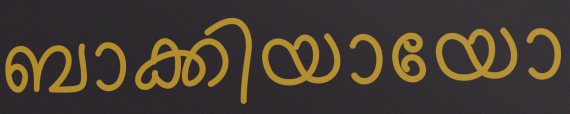
ബാക്കിയായോ